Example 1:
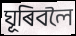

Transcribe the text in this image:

ঘূৰিবলৈ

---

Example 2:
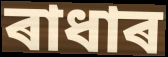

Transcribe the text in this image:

ৰাধাৰ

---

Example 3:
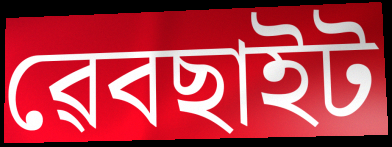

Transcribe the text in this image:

ৱেবছাইট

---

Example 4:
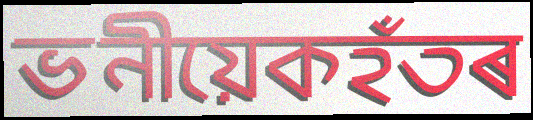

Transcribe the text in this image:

ভনীয়েকহঁতৰ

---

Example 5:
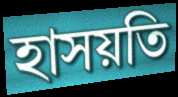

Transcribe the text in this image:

হাসয়তি